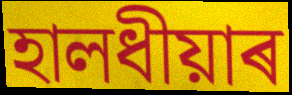
হালধীয়াৰ